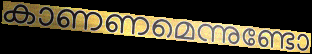
കാണണമെന്നുണ്ടോ